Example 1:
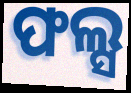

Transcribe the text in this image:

ଫଲ୍ସ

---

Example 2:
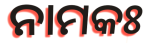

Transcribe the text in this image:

ନାମକଃ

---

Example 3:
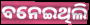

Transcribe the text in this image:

ବନେଇଥିଲି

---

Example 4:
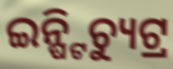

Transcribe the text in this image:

ଇନ୍ଷ୍ଟିଚ୍ୟୁଟ୍ର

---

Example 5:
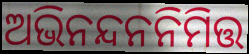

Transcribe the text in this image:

ଅଭିନନ୍ଦନନିମିତ୍ତ